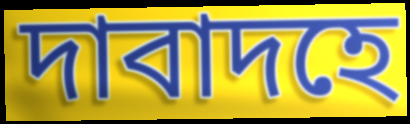
দাবাদহে